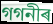
গগনীৰ